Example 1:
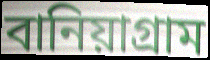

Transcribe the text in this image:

বানিয়াগ্রাম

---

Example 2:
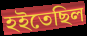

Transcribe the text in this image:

হইতেছিল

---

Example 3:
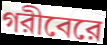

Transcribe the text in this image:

গরীবেরে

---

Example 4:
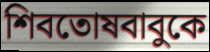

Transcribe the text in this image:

শিবতোষবাবুকে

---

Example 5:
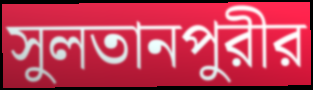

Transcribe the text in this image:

সুলতানপুরীর